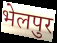
भेलपुर